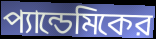
প্যান্ডেমিকের